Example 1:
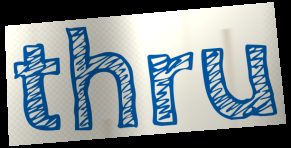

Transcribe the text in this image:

thru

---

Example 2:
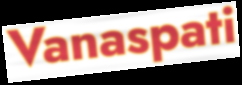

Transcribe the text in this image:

Vanaspati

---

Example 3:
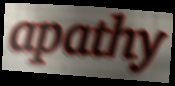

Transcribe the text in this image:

apathy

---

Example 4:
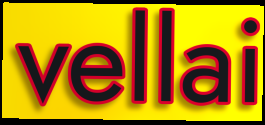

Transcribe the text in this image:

vellai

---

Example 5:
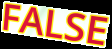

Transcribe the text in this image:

FALSE